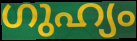
ഗുഹ്യം